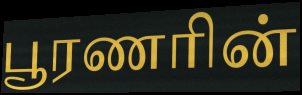
பூரணரின்